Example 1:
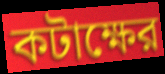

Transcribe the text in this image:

কটাক্ষের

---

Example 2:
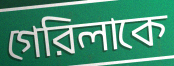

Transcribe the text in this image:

গেরিলাকে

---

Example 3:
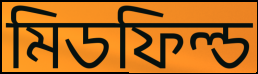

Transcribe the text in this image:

মিডফিল্ড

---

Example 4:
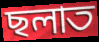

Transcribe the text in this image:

ছলাত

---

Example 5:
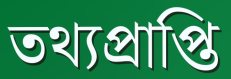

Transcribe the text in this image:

তথ্যপ্রাপ্তি